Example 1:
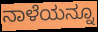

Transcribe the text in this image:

ನಾಳೆಯನ್ನೂ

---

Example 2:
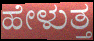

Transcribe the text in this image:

ಹೇಳುತ್ತ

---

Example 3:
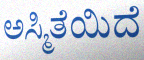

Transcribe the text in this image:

ಅಸ್ಮಿತೆಯಿದೆ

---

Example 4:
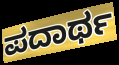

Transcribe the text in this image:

ಪದಾರ್ಥ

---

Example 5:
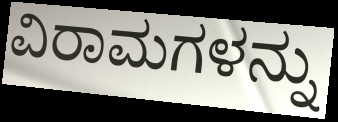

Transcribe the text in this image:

ವಿರಾಮಗಳನ್ನು